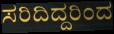
ಸರಿದಿದ್ದರಿಂದ